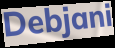
Debjani